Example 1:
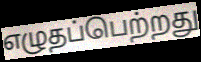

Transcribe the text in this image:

எழுதப்பெற்றது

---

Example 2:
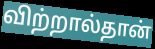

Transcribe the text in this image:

விற்றால்தான்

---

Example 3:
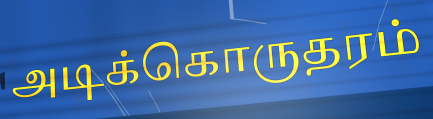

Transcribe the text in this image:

அடிக்கொருதரம்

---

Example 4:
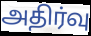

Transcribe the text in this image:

அதிர்வு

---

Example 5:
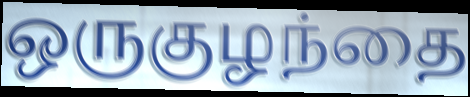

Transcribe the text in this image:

ஒருகுழந்தை